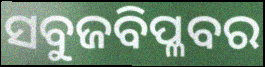
ସବୁଜବିପ୍ଳବର